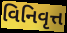
વિનિવૃત્ત